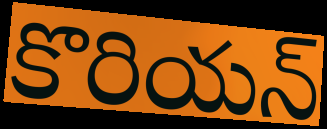
కొరియన్